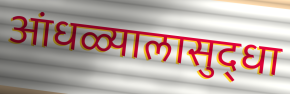
आंधळ्यालासुद्धा